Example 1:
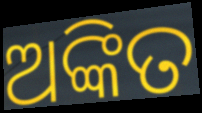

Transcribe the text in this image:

ଅଙ୍କିତ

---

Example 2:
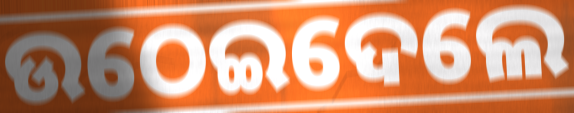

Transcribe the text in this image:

ଉଠେଇଦେଲେ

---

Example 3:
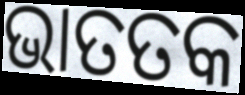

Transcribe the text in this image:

ଭାତତକ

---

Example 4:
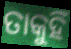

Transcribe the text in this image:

ତାକୁହିଁ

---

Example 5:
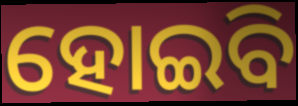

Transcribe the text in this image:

ହୋଇିବ